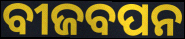
ବୀଜବପନ